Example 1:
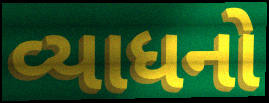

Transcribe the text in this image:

વ્યાધનો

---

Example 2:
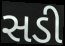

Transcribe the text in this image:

સડી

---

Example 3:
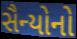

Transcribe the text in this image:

સૈન્યોનો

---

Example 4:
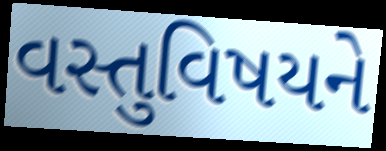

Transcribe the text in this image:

વસ્તુવિષયને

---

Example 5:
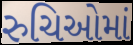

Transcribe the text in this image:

રુચિઓમાં